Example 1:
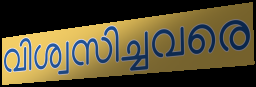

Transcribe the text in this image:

വിശ്വസിച്ചവരെ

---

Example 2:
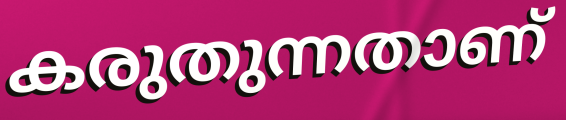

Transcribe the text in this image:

കരുതുന്നതാണ്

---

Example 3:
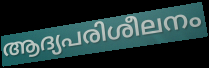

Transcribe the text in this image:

ആദ്യപരിശീലനം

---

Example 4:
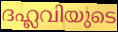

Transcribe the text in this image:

ദഹ്ലവിയുടെ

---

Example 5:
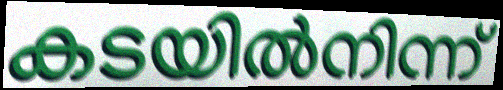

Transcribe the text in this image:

കടയിൽനിന്ന്